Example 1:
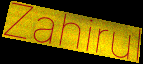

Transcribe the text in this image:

Zahirul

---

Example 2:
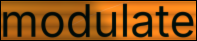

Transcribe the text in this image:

modulate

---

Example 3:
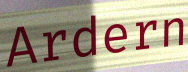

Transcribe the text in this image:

Ardern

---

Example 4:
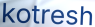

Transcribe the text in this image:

kotresh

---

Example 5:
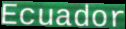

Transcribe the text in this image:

Ecuador